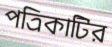
পত্রিকাটির